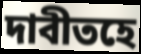
দাবীতহে